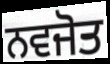
ਨਵਜੋਤ